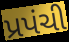
પ્રપંચી